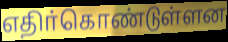
எதிர்கொண்டுள்ளன